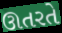
ઊતરતે